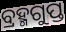
ବ୍ରହ୍ମଗୁପ୍ତ